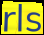
rls